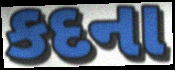
કદના